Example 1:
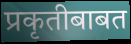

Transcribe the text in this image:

प्रकृतीबाबत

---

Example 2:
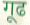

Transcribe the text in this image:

गूढ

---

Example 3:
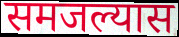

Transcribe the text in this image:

समजल्यास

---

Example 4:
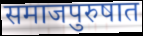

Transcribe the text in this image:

समाजपुरुषात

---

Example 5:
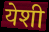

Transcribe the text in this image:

येशी